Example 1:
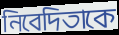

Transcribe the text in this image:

নিবেদিতাকে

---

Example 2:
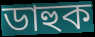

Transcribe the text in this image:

ডাহুক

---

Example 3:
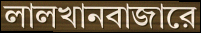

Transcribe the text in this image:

লালখানবাজারে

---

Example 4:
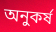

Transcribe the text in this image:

অনুকর্ষ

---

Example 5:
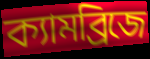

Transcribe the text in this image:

ক্যামব্রিজে